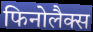
फिनोलैक्स